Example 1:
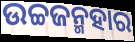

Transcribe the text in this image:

ଉଚ୍ଚଜନ୍ମହାର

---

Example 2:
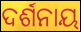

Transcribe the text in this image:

ଦର୍ଶନାୟ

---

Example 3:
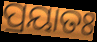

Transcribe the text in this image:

ପ୍ରୟାତଃ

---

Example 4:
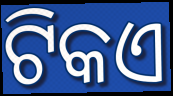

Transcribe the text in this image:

ଟିକଏ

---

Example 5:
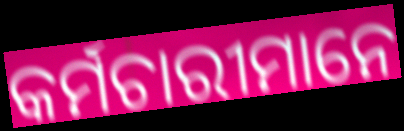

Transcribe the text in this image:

କର୍ମଚାରୀମାନେ